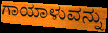
ಗಾಯಾಳುವನ್ನು